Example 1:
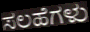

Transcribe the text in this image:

ಸಲಹೆಗಳು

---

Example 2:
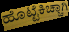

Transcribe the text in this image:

ಹೊಟ್ಟೆಕಿಚ್ಚಾಗಿ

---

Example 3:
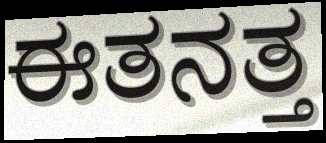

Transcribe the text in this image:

ಈತನತ್ತ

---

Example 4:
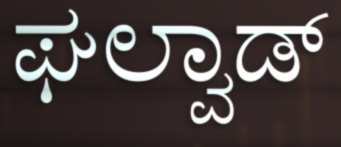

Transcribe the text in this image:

ಘಲ್ವಾಡ್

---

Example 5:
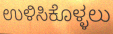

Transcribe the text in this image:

ಉಳಿಸಿಕೊಳ್ಳಲು